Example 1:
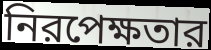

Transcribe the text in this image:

নিরপেক্ষতার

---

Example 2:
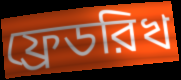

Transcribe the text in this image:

ফ্রেডরিখ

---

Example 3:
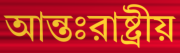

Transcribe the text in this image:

আন্তঃরাষ্ট্রীয়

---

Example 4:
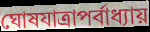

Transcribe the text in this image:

ঘোষযাত্রাপর্বাধ্যায়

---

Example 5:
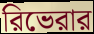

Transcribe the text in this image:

রিভেরার